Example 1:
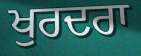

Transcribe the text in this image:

ਖੁਰਦਰਾ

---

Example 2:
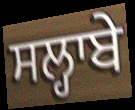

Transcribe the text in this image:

ਸਲ੍ਹਾਬੇ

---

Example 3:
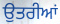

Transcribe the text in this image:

ਉਤਰੀਆਂ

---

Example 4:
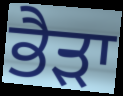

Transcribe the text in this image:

ਭੈੜਾ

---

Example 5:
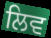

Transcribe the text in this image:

ਲਿਵ